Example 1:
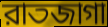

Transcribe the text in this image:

রাতজাগা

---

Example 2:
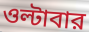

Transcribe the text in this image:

ওল্টাবার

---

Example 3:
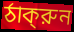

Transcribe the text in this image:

ঠাক্‌রুন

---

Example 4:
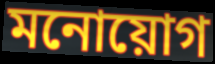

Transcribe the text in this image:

মনোয়োগ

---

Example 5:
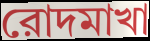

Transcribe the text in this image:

রোদমাখা